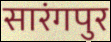
सारंगपुर